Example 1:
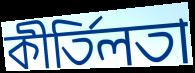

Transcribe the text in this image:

কীৰ্তিলতা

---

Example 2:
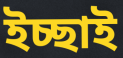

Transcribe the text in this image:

ইচ্ছাই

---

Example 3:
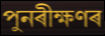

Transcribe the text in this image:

পুনৰীক্ষণৰ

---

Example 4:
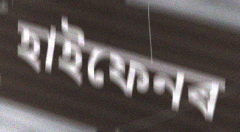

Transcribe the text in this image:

হাইফেনৰ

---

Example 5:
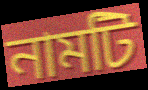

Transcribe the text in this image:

নামটি